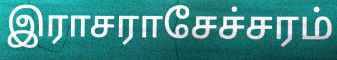
இராசராசேச்சரம்